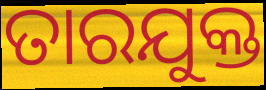
ତାରଯୁକ୍ତ